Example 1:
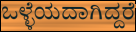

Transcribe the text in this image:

ಒಳ್ಳೆಯದಾಗಿದ್ದರೆ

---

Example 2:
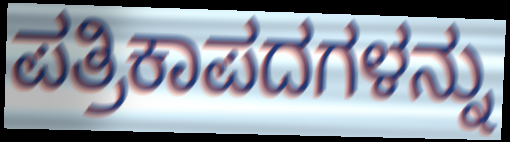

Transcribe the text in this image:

ಪತ್ರಿಕಾಪದಗಳನ್ನು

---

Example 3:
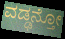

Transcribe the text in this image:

ವಡ್ಢನ್ತೋ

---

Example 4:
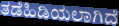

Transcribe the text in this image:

ತಡೆಹಿಡಿಯಲಾಗಿದೆ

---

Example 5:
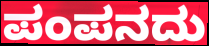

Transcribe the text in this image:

ಪಂಪನದು